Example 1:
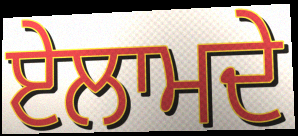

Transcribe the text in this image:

ਏਲਾਮਦੇ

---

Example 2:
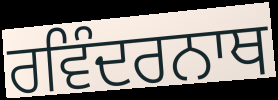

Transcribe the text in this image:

ਰਵਿੰਦਰਨਾਥ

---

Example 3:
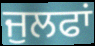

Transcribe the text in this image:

ਜੁਲਫਾਂ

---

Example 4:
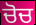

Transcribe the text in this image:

ਚੋਚ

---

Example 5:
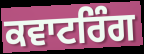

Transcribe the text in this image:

ਕਵਾਟਰਿੰਗ